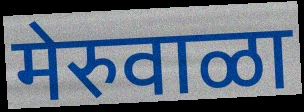
मेरुवाळा